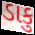
ડાકુ